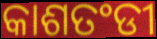
କାଶତଂଡୀ